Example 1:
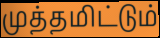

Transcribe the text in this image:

முத்தமிட்டும்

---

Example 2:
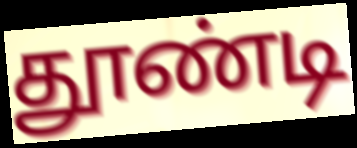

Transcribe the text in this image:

தூண்டி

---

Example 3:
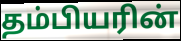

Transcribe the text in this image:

தம்பியரின்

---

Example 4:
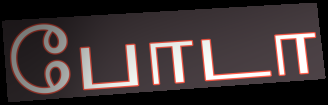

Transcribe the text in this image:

போடா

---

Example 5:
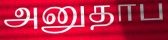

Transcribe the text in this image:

அனுதாப